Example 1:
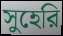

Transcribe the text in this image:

সুহেরি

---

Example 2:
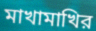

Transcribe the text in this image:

মাখামাখির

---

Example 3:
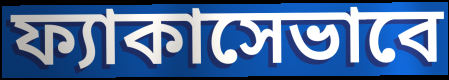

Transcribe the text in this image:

ফ্যাকাসেভাবে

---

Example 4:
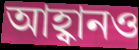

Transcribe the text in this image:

আহ্বানও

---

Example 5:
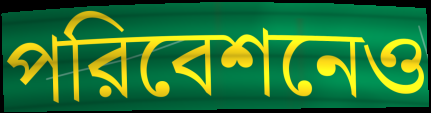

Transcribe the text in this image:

পরিবেশনেও